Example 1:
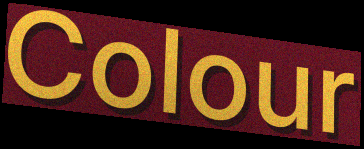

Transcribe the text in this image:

Colour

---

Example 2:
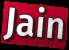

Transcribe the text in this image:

Jain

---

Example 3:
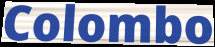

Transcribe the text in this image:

Colombo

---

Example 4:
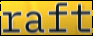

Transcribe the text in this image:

raft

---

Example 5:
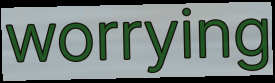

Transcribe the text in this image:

worrying